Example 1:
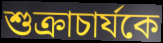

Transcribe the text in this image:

শুক্রাচার্যকে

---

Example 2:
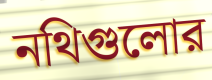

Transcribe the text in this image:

নথিগুলোর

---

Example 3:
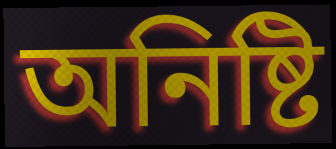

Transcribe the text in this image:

অনিষ্টি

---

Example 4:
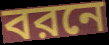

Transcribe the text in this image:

বরনে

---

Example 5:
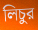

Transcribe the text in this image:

লিচুর